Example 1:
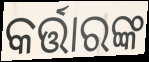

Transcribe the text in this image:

କର୍ତ୍ତାରଙ୍କ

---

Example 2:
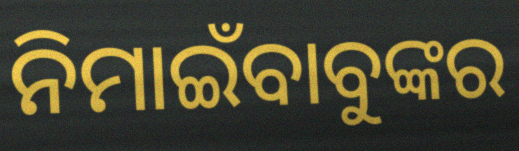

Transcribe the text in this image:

ନିମାଇଁବାବୁଙ୍କର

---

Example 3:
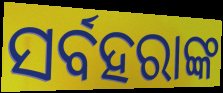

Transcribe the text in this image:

ସର୍ବହରାଙ୍କ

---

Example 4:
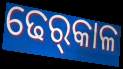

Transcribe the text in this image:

ଢେର୍‌କାଳ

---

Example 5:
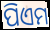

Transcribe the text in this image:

ପିଏମ